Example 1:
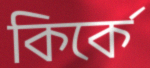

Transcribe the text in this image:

কির্কে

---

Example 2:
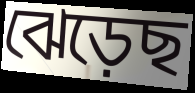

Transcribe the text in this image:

ঝেড়েছ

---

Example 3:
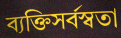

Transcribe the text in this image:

ব্যক্তিসর্বস্বতা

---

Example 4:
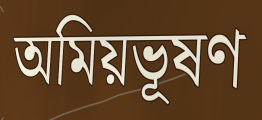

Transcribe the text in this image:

অমিয়ভূষণ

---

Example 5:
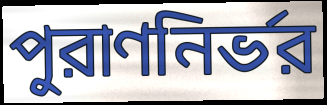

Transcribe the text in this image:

পুরাণনির্ভর